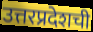
उत्तरप्रदेशची